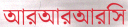
আরআরআরসি